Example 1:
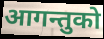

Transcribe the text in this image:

आगन्तुको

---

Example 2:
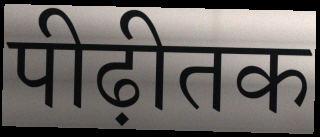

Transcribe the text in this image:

पीढ़ीतक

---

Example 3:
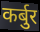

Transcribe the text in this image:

कर्बुर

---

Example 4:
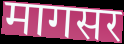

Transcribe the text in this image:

मागसर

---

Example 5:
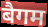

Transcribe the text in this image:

बैगम